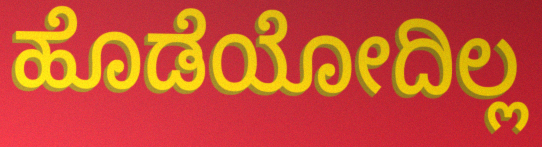
ಹೊಡೆಯೋದಿಲ್ಲ